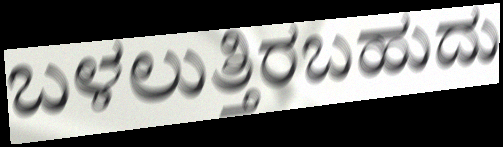
ಬಳಲುತ್ತಿರಬಹುದು